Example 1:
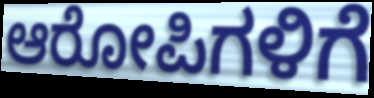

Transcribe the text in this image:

ಆರೋಪಿಗಳಿಗೆ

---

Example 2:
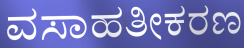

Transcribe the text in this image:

ವಸಾಹತೀಕರಣ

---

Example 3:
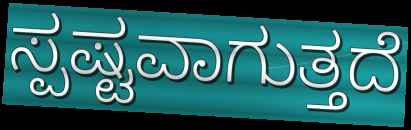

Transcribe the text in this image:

ಸ್ಪಷ್ಟವಾಗುತ್ತದೆ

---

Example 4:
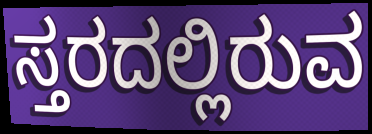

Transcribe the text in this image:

ಸ್ತರದಲ್ಲಿರುವ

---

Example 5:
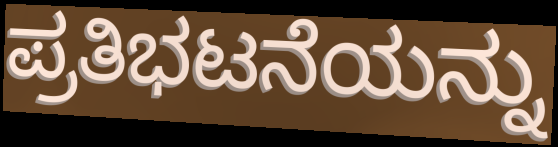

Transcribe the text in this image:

ಪ್ರತಿಭಟನೆಯನ್ನು